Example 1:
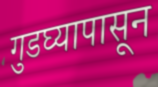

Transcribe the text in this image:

गुडघ्यापासून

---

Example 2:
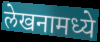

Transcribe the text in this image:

लेखनामध्ये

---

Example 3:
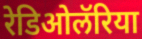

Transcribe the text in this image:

रेडिओलॅरिया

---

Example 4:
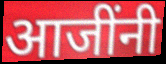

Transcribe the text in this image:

आजींनी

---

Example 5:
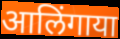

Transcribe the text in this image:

आलिंगाया